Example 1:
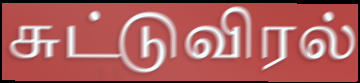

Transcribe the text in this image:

சுட்டுவிரல்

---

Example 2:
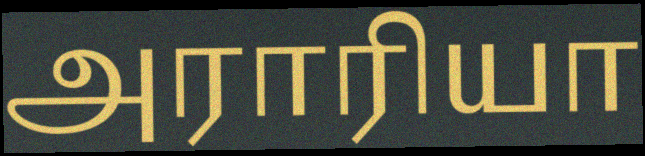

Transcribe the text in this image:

அராரியா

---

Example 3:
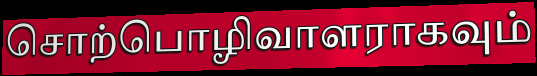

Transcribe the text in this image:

சொற்பொழிவாளராகவும்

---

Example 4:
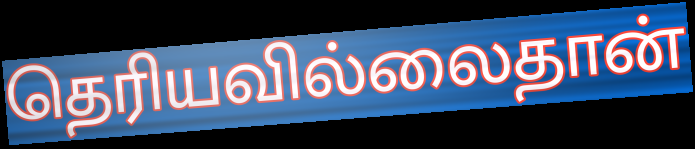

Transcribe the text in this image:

தெரியவில்லைதான்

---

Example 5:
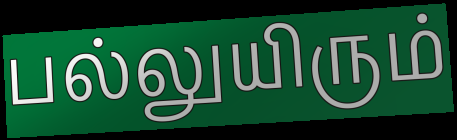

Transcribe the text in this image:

பல்லுயிரும்